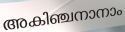
അകിഞ്ചനാനാം